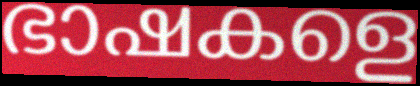
ഭാഷകളെ